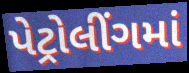
પેટ્રોલીંગમાં